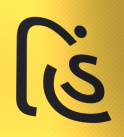
હિં